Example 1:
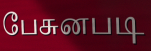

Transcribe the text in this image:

பேசுனபடி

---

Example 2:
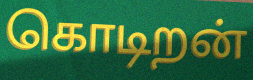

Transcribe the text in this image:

கொடிறன்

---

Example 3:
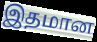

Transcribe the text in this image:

இதமான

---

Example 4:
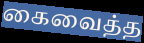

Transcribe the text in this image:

கைவைத்த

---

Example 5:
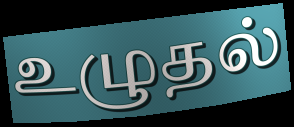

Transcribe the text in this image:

உழுதல்